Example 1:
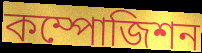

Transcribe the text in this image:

কম্পোজিশন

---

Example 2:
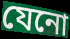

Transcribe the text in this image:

যেনো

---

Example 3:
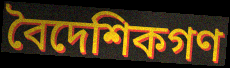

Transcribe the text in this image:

বৈদেশিকগণ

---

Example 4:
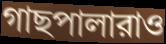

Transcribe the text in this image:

গাছপালারাও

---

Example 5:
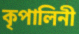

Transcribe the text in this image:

কৃপালিনী